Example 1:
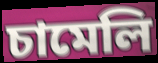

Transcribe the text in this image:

চামেলি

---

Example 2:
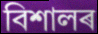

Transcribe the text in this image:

বিশালৰ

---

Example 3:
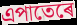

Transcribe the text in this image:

এপাতেৰে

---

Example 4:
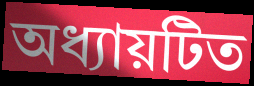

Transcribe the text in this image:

অধ্যায়টিত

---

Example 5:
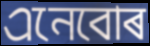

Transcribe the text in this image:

এনেবোৰ